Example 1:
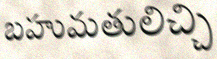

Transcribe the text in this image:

బహుమతులిచ్చి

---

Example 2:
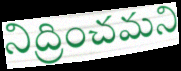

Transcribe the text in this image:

నిద్రించమని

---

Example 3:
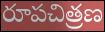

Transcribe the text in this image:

రూపచిత్రణ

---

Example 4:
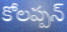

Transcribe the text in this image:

కోలప్పన్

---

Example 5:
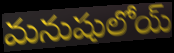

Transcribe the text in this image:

మనుషులోయ్